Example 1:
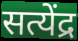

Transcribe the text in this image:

सत्येंद्र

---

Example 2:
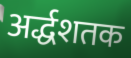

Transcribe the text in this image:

अर्द्धशतक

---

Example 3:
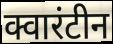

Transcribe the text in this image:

क्वारंटीन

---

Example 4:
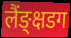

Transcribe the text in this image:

लैंङ्क्षडग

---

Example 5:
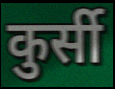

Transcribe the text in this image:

कुर्सी